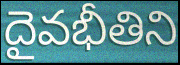
దైవభీతిని